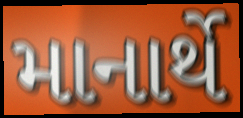
માનાર્થે